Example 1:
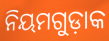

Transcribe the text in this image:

ନିୟମଗୁଡ଼ାକ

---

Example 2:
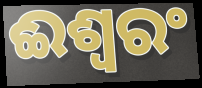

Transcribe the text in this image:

ଈଶ୍ୱରଂ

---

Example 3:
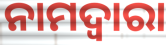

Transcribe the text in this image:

ନାମଦ୍ଵାରା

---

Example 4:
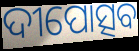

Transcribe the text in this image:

ଦୀପୋତ୍ସବ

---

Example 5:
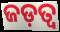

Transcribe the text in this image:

ଜଡ଼ତ୍ଵ